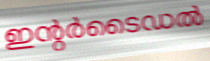
ഇന്റർടൈഡൽ